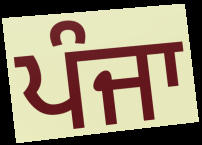
ਪੰਜਾ